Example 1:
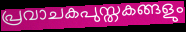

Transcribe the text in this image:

പ്രവാചകപുസ്തകങ്ങളും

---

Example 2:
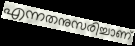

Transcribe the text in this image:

എന്നതനുസരിച്ചാണ്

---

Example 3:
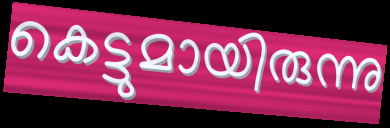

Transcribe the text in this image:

കെട്ടുമായിരുന്നു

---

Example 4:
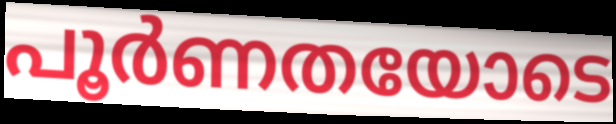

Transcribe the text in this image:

പൂർണതയോടെ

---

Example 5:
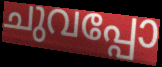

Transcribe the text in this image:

ചുവപ്പോ